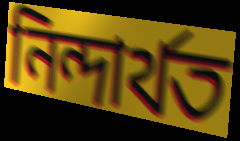
নিন্দাৰ্থত